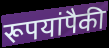
रूपयांपैकी